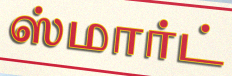
ஸ்மார்ட்